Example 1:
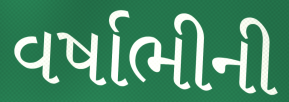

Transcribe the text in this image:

વર્ષાભીની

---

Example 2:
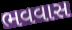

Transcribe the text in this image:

ભવવાસ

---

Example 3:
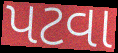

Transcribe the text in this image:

પટવા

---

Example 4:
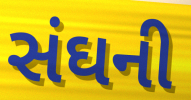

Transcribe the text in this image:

સંઘની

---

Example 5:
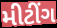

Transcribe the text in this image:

મીટીંગ